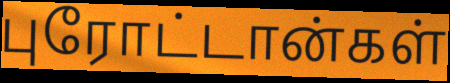
புரோட்டான்கள்